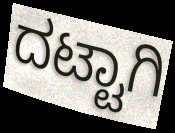
ದಟ್ಟಾಗಿ